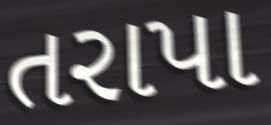
તરાપા